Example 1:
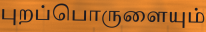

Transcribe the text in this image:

புறப்பொருளையும்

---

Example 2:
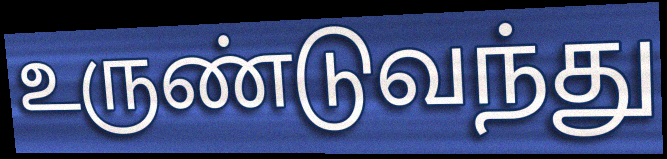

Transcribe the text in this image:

உருண்டுவந்து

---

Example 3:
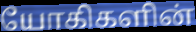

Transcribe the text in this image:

யோகிகளின்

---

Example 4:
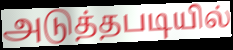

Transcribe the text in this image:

அடுத்தபடியில்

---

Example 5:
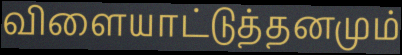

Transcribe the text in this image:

விளையாட்டுத்தனமும்